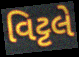
વિટ્ટલે